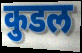
कुडल